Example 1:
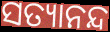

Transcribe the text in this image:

ସତ୍ୟାନନ୍ଦ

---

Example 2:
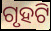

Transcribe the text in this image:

ଗୃହଟି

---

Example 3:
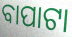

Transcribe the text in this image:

ବାପାଟା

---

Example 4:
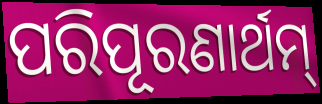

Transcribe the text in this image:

ପରିପୂରଣାର୍ଥମ୍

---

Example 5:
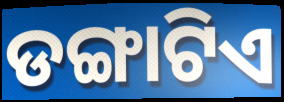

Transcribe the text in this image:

ଡଙ୍ଗାଟିଏ